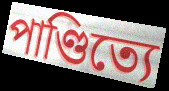
পাণ্ডিত্যে